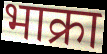
भाक्रा